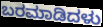
ಬರಮಾಡಿದಳು